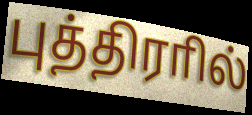
புத்திரரில்